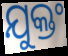
ଯୁକ୍ତଂ